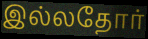
இல்லதோர்